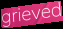
grieved